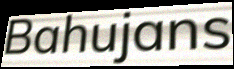
Bahujans